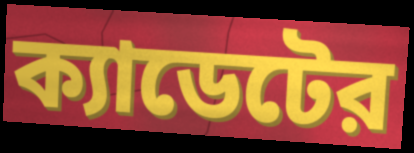
ক্যাডেটের